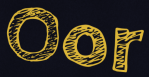
Oor